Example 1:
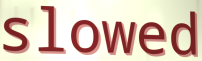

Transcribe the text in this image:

slowed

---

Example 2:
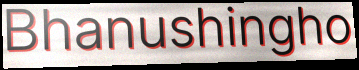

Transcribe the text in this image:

Bhanushingho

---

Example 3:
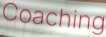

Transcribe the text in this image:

Coaching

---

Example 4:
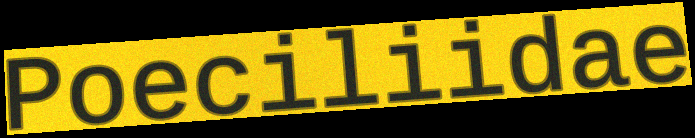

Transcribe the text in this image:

Poeciliidae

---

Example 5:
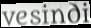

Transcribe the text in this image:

vesindi